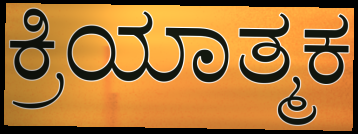
ಕ್ರಿಯಾತ್ಮಕ